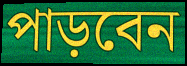
পাড়বেন